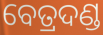
ବେତ୍ରଦଣ୍ଡ